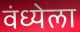
वंध्येला